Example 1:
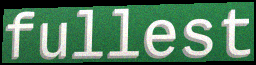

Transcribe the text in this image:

fullest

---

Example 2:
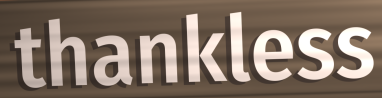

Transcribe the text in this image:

thankless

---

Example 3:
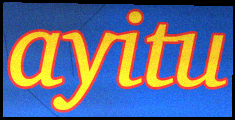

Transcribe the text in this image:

ayitu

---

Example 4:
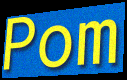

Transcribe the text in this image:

Pom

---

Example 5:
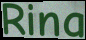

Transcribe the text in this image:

Rina